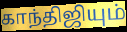
காந்திஜியும்